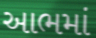
આભમાં